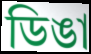
ডিঙা